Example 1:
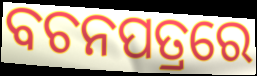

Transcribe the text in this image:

ବଚନପତ୍ରରେ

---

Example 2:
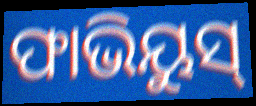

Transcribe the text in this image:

ଫାଭିୟୁସ୍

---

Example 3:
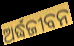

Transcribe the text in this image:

ଅର୍ଦ୍ଧଜୀବନ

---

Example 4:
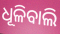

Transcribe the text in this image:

ଧୂଳିବାଲି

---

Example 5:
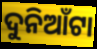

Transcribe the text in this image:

ଦୁନିଆଁଟା